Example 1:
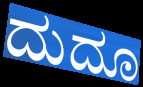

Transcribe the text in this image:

ದುದೂ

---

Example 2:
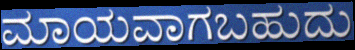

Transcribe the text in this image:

ಮಾಯವಾಗಬಹುದು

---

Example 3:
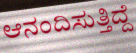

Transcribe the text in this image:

ಆನಂದಿಸುತ್ತಿದ್ದೆ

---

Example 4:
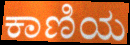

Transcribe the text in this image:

ಕಾಣಿಯ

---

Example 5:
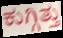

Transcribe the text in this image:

ಕುಗ್ಗಿತ್ತು